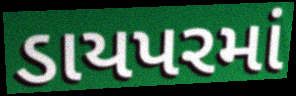
ડાયપરમાં